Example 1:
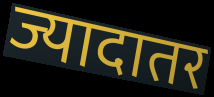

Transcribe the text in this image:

ज्‍यादातर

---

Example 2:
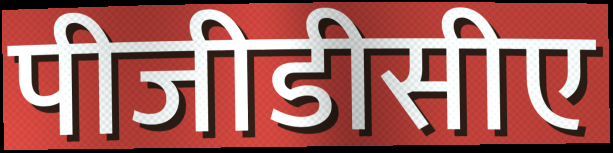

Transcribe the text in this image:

पीजीडीसीए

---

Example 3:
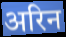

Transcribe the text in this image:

अरिन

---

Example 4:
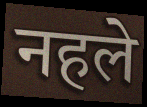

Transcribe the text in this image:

नहले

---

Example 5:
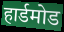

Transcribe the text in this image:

हार्डमोड